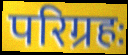
परिग्रहः